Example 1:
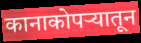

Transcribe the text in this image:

कानाकोपर्‍यातून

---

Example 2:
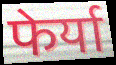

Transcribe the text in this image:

फेर्या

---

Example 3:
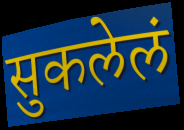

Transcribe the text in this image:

सुकलेलं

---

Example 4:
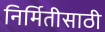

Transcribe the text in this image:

निर्मितीसाठी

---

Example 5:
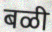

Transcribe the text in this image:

बळी